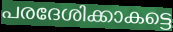
പരദേശിക്കാകട്ടെ